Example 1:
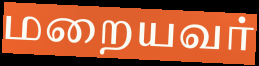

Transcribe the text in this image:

மறையவர்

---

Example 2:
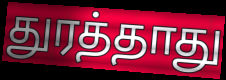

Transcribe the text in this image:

துரத்தாது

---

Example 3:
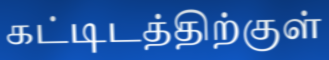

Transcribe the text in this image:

கட்டிடத்திற்குள்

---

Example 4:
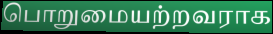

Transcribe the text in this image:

பொறுமையற்றவராக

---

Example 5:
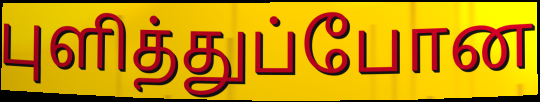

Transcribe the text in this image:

புளித்துப்போன